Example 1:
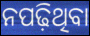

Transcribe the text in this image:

ନପଢ଼ିଥିବା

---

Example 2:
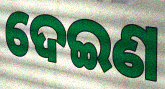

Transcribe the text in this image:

ଦେଇଣ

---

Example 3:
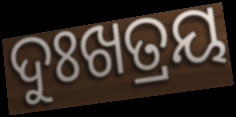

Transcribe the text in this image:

ଦୁଃଖତ୍ରୟ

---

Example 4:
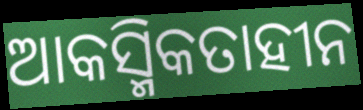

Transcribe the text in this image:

ଆକସ୍ମିକତାହୀନ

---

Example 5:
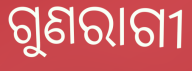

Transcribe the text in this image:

ଗୁଣରାଗୀ